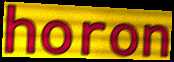
horon